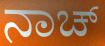
ನಾಚ್